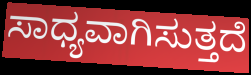
ಸಾಧ್ಯವಾಗಿಸುತ್ತದೆ